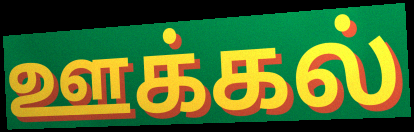
ஊக்கல்